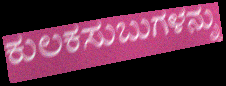
ಕುಲಕಸುಬುಗಳನ್ನು